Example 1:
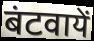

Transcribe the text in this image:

बंटवायें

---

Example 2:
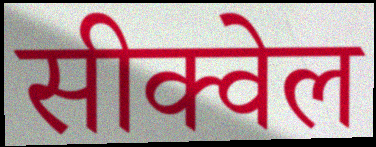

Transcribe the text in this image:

सीक्वेल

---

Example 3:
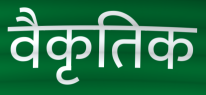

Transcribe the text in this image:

वैकृतिक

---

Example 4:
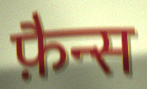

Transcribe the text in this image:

फ़ैन्स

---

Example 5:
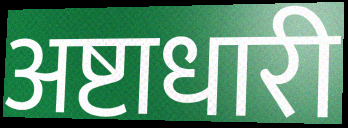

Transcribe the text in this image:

अष्टाधारी